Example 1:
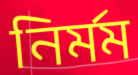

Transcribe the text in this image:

নিৰ্মম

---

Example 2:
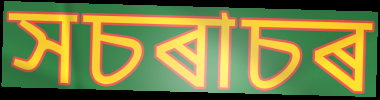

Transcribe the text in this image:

সচৰাচৰ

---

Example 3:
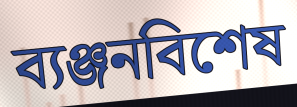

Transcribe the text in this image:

ব্যঞ্জনবিশেষ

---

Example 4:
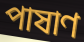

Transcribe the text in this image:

পাষাণ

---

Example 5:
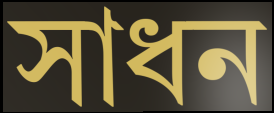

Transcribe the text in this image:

সাধন